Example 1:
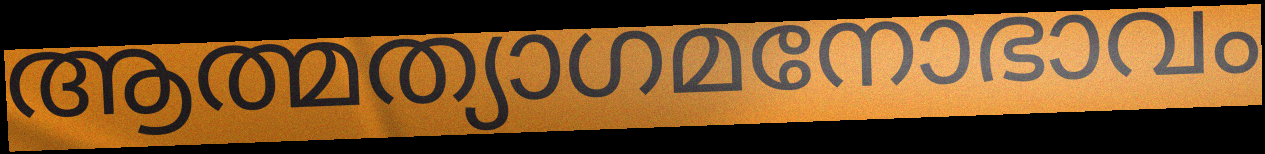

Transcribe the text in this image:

ആത്മത്യാഗമനോഭാവം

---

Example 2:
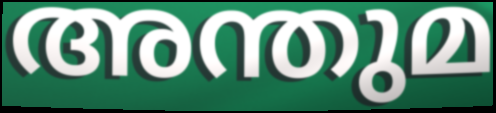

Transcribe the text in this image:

അന്തുമ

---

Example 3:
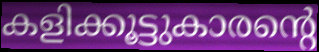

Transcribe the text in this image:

കളിക്കൂട്ടുകാരന്റെ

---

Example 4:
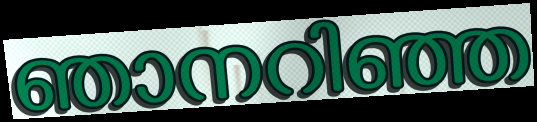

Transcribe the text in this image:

ഞാനറിഞ്ഞ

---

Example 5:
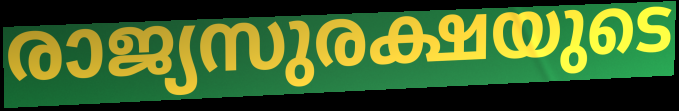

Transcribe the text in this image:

രാജ്യസുരക്ഷയുടെ